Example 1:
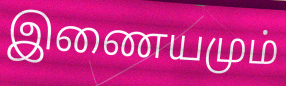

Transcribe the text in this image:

இணையமும்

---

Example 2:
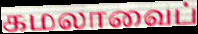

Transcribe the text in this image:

கமலாவைப்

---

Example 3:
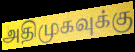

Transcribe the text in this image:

அதிமுகவுக்கு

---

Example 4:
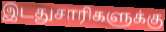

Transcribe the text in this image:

இடதுசாரிகளுக்கு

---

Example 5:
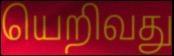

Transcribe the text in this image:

யெறிவது